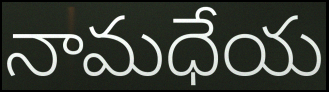
నామధేయ